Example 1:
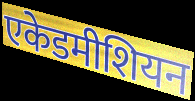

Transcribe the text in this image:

एकेडमीशियन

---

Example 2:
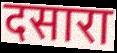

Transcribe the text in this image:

दसारा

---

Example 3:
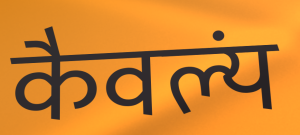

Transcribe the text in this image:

कैवल्यं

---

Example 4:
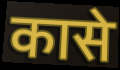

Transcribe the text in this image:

कासे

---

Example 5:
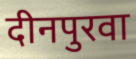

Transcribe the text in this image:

दीनपुरवा